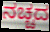
ನಚ್ಚದ